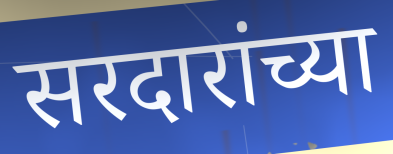
सरदारांच्या